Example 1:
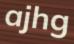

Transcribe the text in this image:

ajhg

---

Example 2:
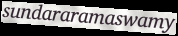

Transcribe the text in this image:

sundararamaswamy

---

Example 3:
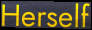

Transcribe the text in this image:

Herself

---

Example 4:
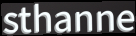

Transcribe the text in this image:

sthanne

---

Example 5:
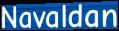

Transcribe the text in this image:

Navaldan